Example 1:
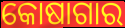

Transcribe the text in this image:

କୋଷାଗାର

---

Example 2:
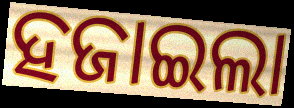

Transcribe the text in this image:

ହଜାଇଲା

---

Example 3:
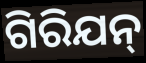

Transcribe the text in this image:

ଗିରିଯନ୍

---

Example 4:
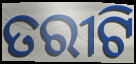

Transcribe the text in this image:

ତରୀଟି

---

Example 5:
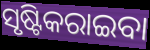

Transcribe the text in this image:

ସୃଷ୍ଟିକରାଇବା